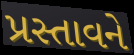
પ્રસ્તાવને